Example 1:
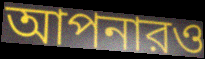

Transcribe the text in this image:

আপনারও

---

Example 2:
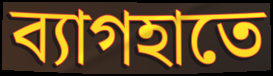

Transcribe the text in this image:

ব্যাগহাতে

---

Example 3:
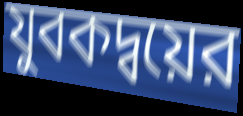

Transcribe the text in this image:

যুবকদ্বয়ের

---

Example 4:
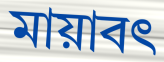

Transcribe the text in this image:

মায়াবৎ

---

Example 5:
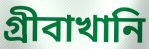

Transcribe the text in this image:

গ্রীবাখানি